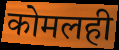
कोमलही